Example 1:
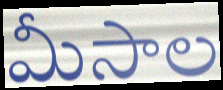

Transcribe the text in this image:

మీసాల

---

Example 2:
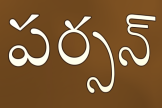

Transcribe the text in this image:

పర్సన్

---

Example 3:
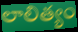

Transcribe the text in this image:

లాలిత్యం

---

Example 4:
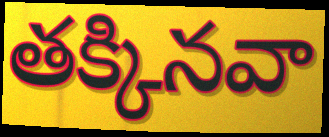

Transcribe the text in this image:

తక్కినవా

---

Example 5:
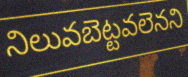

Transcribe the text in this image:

నిలువబెట్టవలెనని